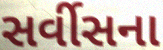
સર્વીસના